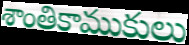
శాంతికాముకులు